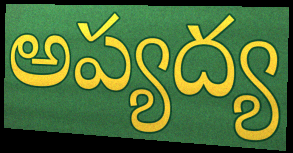
అప్యద్య